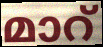
മാറ്